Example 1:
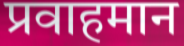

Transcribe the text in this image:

प्रवाहमान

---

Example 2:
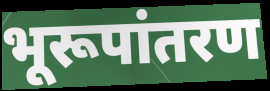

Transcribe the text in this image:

भूरूपांतरण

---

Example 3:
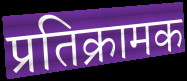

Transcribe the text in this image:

प्रतिक्रामक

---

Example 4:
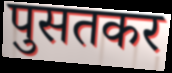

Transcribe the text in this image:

पुसतकर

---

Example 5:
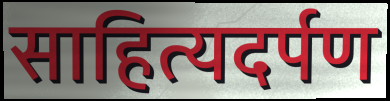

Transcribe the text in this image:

साहित्यदर्पण